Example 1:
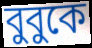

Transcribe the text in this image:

বুবুকে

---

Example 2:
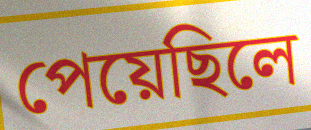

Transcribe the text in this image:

পেয়েছিলে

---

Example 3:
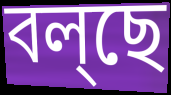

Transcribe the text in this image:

বল্ছে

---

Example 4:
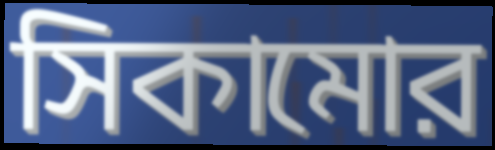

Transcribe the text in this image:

সিকামোর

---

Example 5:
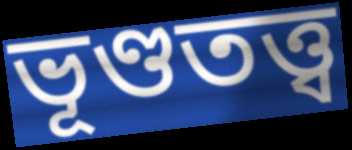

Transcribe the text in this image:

ভূণ্ডতত্ত্ব